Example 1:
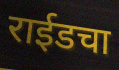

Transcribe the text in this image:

राईडचा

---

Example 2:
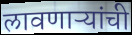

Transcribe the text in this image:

लावणाऱ्यांची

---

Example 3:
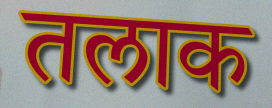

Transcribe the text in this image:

तलाक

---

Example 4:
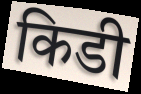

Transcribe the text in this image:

किडी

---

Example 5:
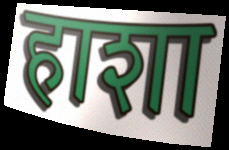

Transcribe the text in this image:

हाशा